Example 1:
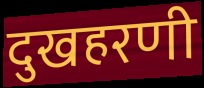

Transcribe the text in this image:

दुखहरणी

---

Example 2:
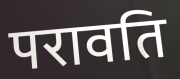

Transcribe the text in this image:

परावति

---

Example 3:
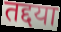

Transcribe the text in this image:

तद्दया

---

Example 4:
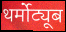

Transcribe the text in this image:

थर्मोट्यूब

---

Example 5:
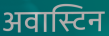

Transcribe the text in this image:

अवास्टिन